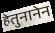
हेतुनानेन